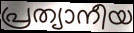
പ്രത്യാനീയ